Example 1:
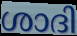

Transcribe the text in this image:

ശാദി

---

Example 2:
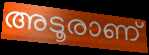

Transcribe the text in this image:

അടൂരാണ്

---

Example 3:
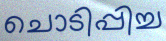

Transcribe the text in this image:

ചൊടിപ്പിച്ച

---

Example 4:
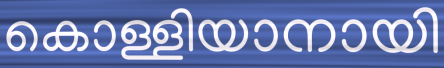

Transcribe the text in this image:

കൊള്ളിയാനായി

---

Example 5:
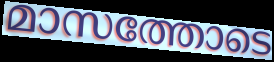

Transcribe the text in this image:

മാസത്തോടെ